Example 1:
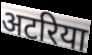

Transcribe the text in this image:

अटरिया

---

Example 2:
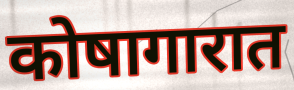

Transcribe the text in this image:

कोषागारात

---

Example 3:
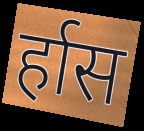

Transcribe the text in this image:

र्हास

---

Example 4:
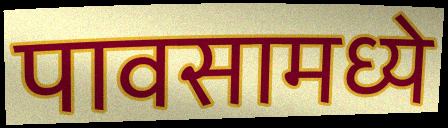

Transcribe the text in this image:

पावसामध्ये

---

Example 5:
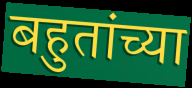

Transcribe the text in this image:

बहुतांच्या